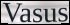
Vasus